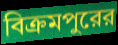
বিক্রমপুরের